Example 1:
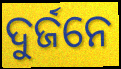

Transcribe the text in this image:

ଦୁର୍ଜନେ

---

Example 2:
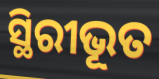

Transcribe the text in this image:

ସ୍ଥିରୀଭୂତ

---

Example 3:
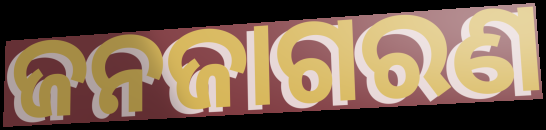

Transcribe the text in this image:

ଜନଜାଗରଣ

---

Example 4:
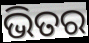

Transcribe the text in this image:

ଭିତର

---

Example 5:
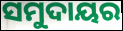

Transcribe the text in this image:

ସମୁଦାୟର